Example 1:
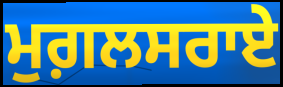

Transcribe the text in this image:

ਮੁਗ਼ਲਸਰਾਏ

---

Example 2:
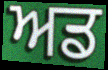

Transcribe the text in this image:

ਅਡ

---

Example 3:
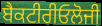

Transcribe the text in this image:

ਬੈਕਟੀਰੀਓਲੋਜੀ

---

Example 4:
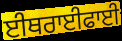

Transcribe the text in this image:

ਈਥਰਾਈਫਾਈ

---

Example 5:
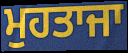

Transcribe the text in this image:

ਮੁਹਤਾਜਾ